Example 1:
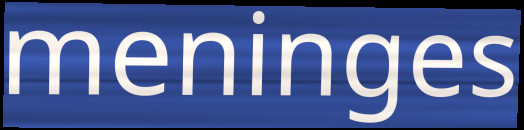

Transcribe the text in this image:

meninges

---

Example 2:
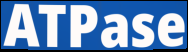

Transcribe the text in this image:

ATPase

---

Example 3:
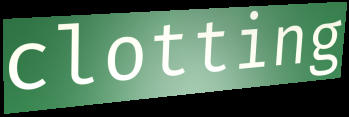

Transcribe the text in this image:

clotting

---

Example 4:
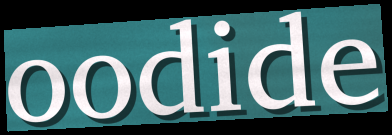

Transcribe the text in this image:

oodide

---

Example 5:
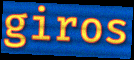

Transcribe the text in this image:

giros